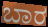
ಬಾರ